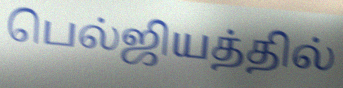
பெல்ஜியத்தில்